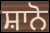
ਸ਼ਾਨੋ